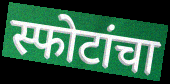
स्फोटांचा